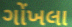
ગોંખલા